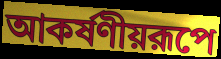
আকর্ষণীয়রূপে